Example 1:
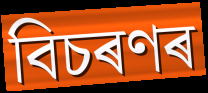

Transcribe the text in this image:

বিচৰণৰ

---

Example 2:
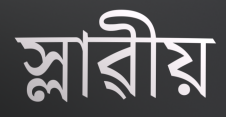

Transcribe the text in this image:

স্লাৱীয়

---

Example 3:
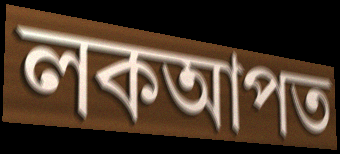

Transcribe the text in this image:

লকআপত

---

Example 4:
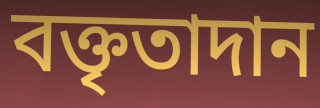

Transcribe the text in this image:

বক্তৃতাদান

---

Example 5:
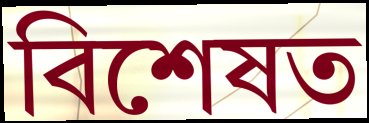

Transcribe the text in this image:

বিশেষত